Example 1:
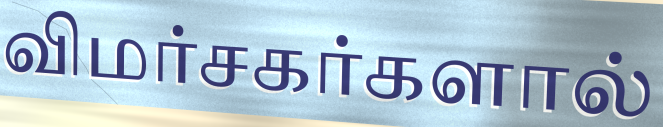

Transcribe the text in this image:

விமர்சகர்களால்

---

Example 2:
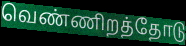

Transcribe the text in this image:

வெண்ணிறத்தோடு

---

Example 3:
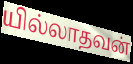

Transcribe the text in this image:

யில்லாதவன்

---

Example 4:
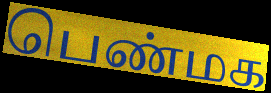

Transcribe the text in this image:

பெண்மக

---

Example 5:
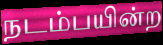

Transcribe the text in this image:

நடம்பயின்ற